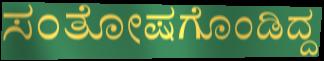
ಸಂತೋಷಗೊಂಡಿದ್ದ